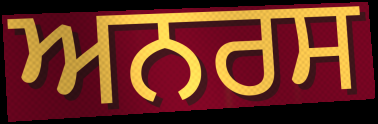
ਅਨਰਸ